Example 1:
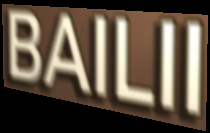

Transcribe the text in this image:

BAILII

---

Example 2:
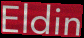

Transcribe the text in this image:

Eldin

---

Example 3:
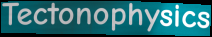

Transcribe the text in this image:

Tectonophysics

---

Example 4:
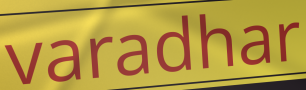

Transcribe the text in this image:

varadhar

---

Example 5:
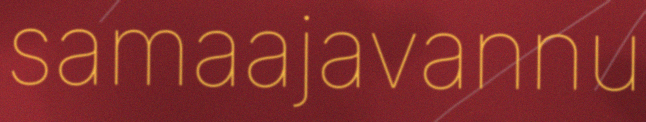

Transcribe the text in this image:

samaajavannu